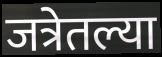
जत्रेतल्या